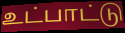
உட்பாட்டு